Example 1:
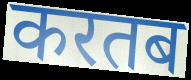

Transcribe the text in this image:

करतब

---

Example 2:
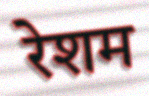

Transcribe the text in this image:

रेशम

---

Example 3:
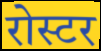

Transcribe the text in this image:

रोस्टर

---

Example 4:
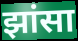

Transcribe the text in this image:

झांसा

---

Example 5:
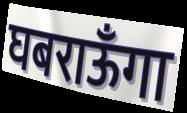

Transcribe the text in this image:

घबराऊँगा